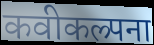
कवीकल्पना